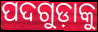
ପଦଗୁଡ଼ାକୁ